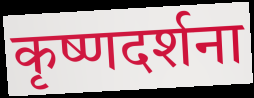
कृष्णदर्शना